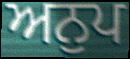
ਅਨੁਪ